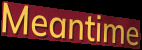
Meantime